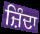
ਜ਼ਿੰਦਾ